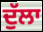
ਦੁੱਲਾ